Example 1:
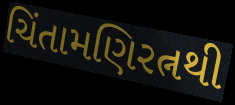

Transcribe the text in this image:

ચિંતામણિરત્નથી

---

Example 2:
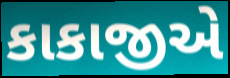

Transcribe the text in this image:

કાકાજીએ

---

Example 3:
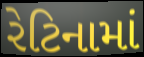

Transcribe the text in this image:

રેટિનામાં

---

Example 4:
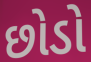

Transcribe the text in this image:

છોડો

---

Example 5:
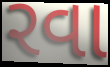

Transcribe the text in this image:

રવા